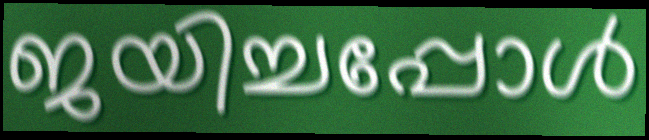
ജയിച്ചപ്പോൾ